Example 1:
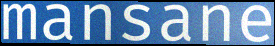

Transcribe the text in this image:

mansane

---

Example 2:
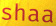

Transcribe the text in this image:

shaa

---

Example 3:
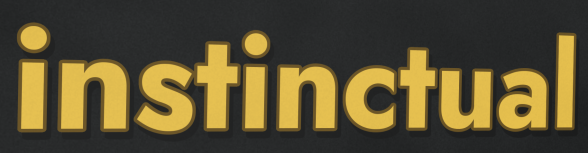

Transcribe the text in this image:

instinctual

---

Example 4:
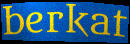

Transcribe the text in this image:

berkat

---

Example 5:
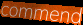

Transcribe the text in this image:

commend